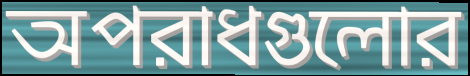
অপরাধগুলোর